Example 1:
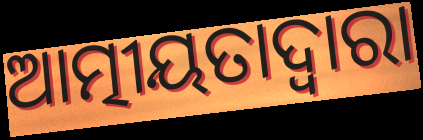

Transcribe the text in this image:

ଆତ୍ମୀୟତାଦ୍ଵାରା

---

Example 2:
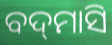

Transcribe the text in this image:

ବଦ୍‌ମାସି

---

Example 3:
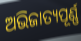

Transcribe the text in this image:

ଅଭିଜାତ୍ୟପୂର୍ଣ୍ଣ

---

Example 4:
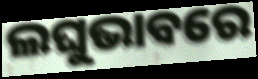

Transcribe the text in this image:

ଲଘୁଭାବରେ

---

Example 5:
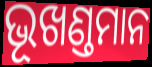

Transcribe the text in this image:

ଭୂଖଣ୍ଡମାନ